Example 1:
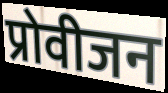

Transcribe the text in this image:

प्रोवीजन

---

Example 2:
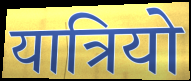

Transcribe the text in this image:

यात्रियो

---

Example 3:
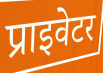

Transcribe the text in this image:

प्राइवेटर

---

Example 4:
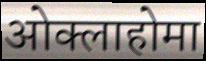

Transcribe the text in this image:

ओक्लाहोमा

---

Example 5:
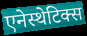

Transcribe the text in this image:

एनेस्थेटिक्स